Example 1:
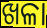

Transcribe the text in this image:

ଖଳା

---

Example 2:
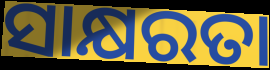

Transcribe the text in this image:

ସାକ୍ଷରତା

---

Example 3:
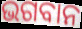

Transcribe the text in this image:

ଭଗବାନ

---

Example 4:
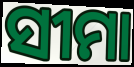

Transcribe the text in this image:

ସୀମା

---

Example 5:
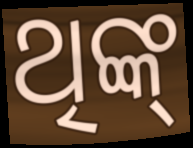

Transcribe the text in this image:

ଥିଙ୍କ୍